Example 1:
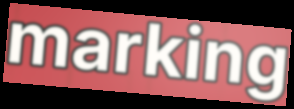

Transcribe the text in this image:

marking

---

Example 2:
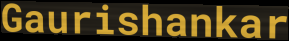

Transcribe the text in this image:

Gaurishankar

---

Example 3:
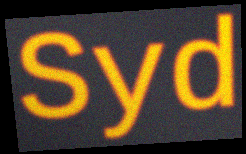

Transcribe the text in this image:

Syd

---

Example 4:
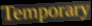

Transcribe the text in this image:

Temporary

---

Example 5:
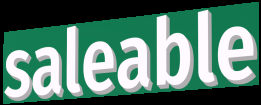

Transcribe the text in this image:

saleable